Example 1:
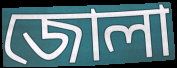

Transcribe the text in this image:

জোলা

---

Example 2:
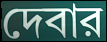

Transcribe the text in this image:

দেবার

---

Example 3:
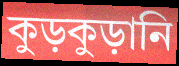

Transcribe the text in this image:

কুড়কুড়ানি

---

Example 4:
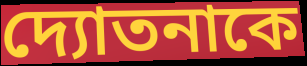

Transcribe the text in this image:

দ্যোতনাকে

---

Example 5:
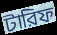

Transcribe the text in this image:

টারিফ